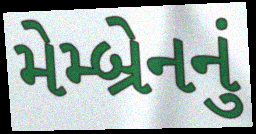
મેમ્બ્રેનનું